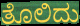
ತೊಲಿದು